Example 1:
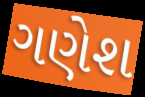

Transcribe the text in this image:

ગણેશ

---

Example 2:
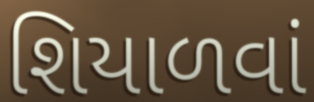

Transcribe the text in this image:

શિયાળવાં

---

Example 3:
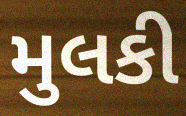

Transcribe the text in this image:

મુલકી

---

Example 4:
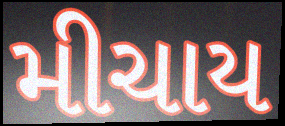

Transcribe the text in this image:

મીચાય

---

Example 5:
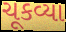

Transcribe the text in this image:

ચૂકવ્યા